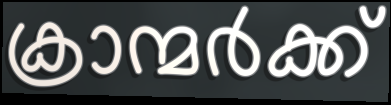
ക്രാന്മർക്ക്